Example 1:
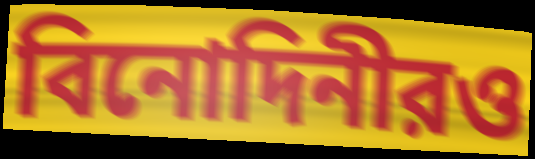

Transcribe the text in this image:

বিনোদিনীরও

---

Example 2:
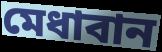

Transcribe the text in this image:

মেধাবান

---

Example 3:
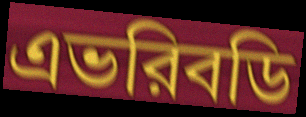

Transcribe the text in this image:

এভরিবডি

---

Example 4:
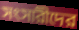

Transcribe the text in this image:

সংসারীদের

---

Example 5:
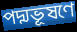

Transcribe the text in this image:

পদ্মভূষণে